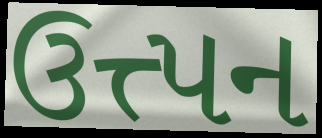
ઉત્ત્પન